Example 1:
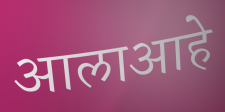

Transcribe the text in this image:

आलाआहे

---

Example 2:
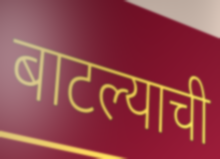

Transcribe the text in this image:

बाटल्याची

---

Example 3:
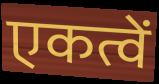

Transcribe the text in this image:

एकत्वें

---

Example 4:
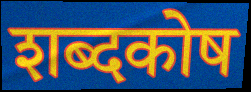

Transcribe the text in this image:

शब्दकोष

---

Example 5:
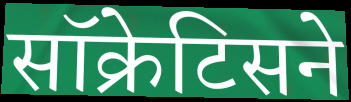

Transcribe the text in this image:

सॉक्रेटिसने